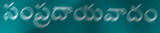
సంప్రదాయవాదం